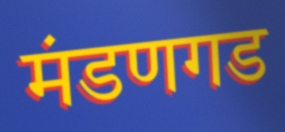
मंडणगड